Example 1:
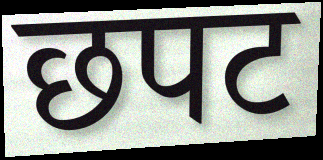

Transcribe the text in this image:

छपट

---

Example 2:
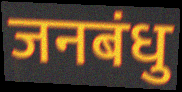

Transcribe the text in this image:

जनबंधु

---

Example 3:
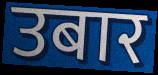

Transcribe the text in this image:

उबार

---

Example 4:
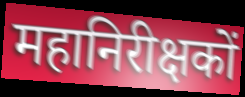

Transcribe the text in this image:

महानिरीक्षकों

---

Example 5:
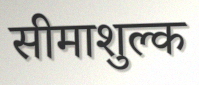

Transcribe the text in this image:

सीमाशुल्क